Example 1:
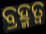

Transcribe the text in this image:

ବ୍ରହ୍ମତ୍ୱ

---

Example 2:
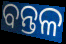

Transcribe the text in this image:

ବନ୍ତଳ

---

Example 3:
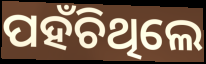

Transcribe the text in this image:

ପହଁଚିଥିଲେ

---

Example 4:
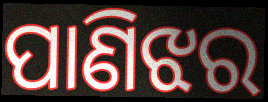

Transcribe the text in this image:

ପାଣିଝର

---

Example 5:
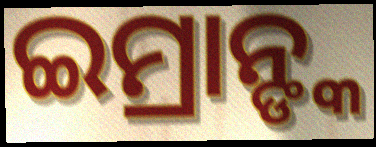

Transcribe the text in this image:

ଇମ୍ରାନ୍ଙ୍କ